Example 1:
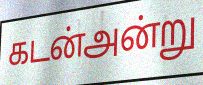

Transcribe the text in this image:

கடன்அன்று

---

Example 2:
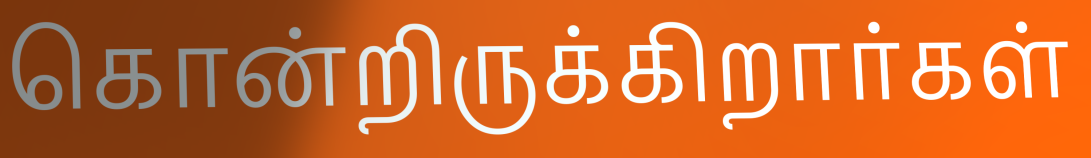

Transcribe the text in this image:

கொன்றிருக்கிறார்கள்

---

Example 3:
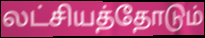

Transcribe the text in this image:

லட்சியத்தோடும்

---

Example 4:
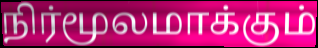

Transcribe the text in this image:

நிர்மூலமாக்கும்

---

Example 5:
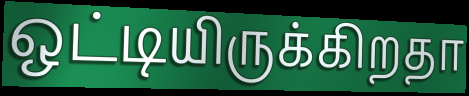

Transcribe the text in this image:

ஒட்டியிருக்கிறதா